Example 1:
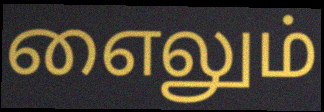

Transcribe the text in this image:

எைலும்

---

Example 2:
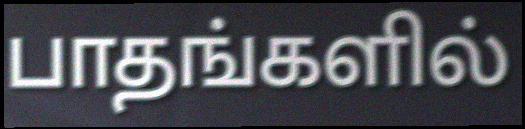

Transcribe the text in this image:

பாதங்களில்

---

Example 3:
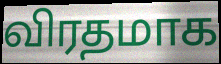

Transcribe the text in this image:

விரதமாக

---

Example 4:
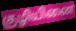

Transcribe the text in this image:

குழியினை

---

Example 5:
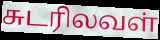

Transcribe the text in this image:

சுடரிலவள்